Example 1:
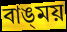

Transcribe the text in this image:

বাঙ্‌ময়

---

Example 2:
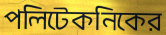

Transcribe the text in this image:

পলিটেকনিকের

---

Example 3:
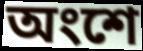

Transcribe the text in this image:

অংশে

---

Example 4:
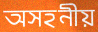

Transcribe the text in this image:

অসহনীয়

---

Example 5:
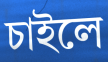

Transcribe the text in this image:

চাইলে